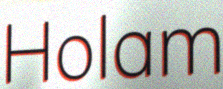
Holam